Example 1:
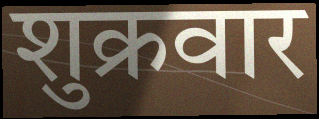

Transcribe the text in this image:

शुक्रवार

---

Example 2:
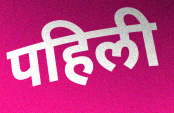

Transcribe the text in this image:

पहिली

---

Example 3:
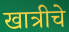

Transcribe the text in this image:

खात्रीचे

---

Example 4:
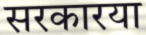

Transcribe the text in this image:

सरकारया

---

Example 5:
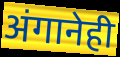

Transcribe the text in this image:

अंगानेही